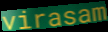
virasam